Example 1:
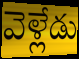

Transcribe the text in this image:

వెళ్లేడు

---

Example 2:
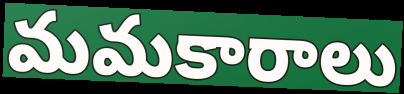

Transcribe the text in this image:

మమకారాలు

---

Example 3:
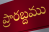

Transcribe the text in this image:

ప్రారబ్దము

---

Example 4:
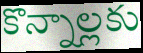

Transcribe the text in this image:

కొన్నాల్లకు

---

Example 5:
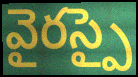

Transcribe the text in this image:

వైరస్పై